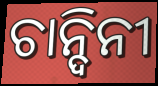
ଚାନ୍ଦିନୀ